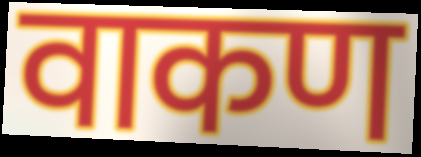
वाकण